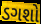
ડગશો